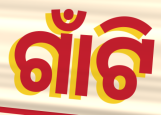
ଗାଁଟି